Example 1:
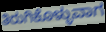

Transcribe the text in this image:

ತಿರುಗಿಕೊಳ್ಳುವಾಗ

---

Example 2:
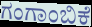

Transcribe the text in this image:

ಗಂಗಾಂಬಿಕೆ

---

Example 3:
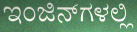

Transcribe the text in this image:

ಇಂಜಿನ್‌ಗಳಲ್ಲಿ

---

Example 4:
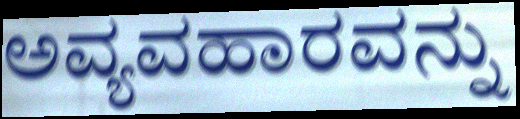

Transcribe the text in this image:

ಅವ್ಯವಹಾರವನ್ನು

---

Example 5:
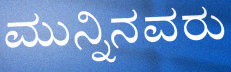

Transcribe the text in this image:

ಮುನ್ನಿನವರು